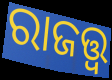
ରାଜତ୍ତ୍ୱ